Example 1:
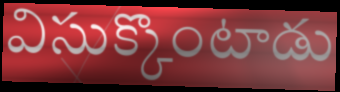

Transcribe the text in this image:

విసుక్కొంటాడు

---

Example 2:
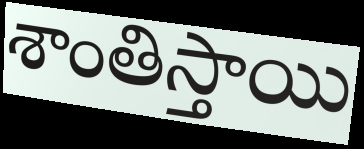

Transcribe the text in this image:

శాంతిస్తాయి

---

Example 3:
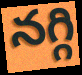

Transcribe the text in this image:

నగ్గి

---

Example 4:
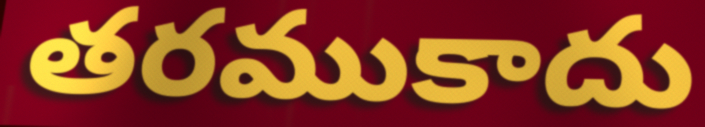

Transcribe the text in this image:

తరముకాదు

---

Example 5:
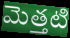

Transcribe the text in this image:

మెత్తటి